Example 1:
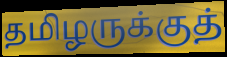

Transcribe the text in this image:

தமிழருக்குத்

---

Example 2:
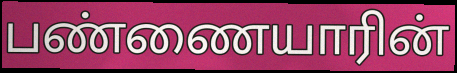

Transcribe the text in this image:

பண்ணையாரின்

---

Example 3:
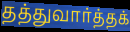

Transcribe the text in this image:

தத்துவார்த்தக்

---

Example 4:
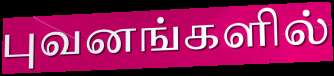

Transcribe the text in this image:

புவனங்களில்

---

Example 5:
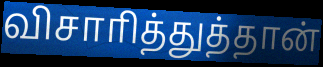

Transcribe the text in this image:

விசாரித்துத்தான்